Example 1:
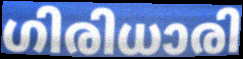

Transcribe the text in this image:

ഗിരിധാരി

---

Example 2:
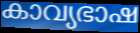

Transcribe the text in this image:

കാവ്യഭാഷ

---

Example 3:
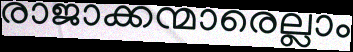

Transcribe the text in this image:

രാജാക്കന്മാരെല്ലാം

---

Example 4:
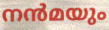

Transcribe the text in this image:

നൻമയും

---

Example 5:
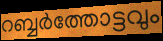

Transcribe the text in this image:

റബ്ബർത്തോട്ടവും